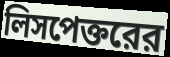
লিসপেক্তরের